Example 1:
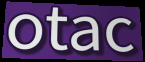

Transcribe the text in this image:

otac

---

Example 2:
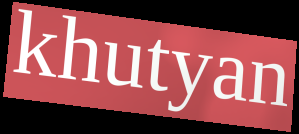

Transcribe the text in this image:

khutyan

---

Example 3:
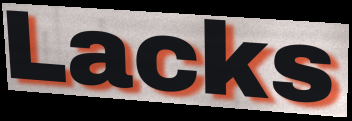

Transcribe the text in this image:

Lacks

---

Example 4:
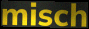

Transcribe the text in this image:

misch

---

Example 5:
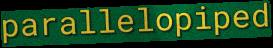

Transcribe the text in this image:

parallelopiped